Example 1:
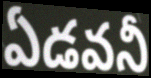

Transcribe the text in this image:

ఏడవనీ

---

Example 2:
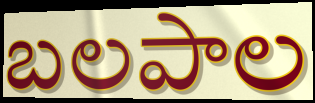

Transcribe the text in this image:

బలపాల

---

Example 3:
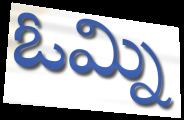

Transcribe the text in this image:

ఓమ్ని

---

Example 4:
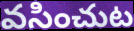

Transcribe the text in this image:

వసించుట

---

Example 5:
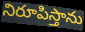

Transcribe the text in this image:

నిరూపిస్తాను